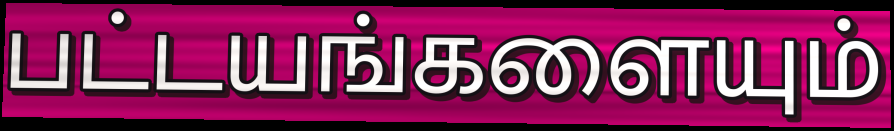
பட்டயங்களையும்